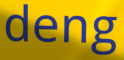
deng